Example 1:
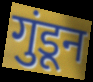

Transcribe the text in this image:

गुंडून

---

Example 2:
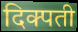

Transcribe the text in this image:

दिक्पती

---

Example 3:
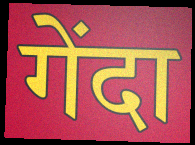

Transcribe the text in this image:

गेंदा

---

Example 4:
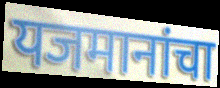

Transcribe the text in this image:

यजमानांचा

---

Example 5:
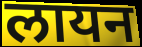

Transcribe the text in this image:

लायन